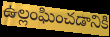
ఉల్లంఘించడానికి